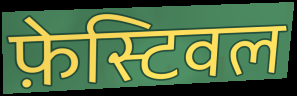
फ़ेस्टिवल